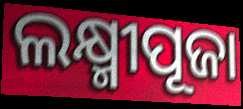
ଲକ୍ଷ୍ମୀପୂଜା